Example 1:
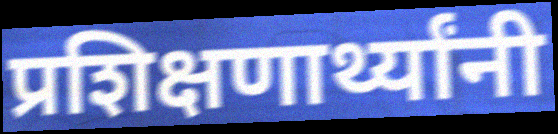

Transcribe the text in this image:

प्रशिक्षणार्थ्यांनी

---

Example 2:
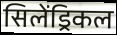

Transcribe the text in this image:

सिलेंड्रिकल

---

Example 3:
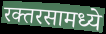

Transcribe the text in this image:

रक्तरसामध्ये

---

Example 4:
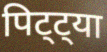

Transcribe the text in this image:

पिट्ट्या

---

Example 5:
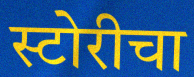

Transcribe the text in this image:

स्टोरीचा